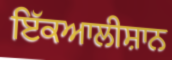
ਇੱਕਆਲੀਸ਼ਾਨ